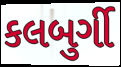
કલબુર્ગી